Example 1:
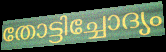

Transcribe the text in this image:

തോട്ടിച്ചോദ്യം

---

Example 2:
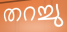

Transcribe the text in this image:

തറച്ചു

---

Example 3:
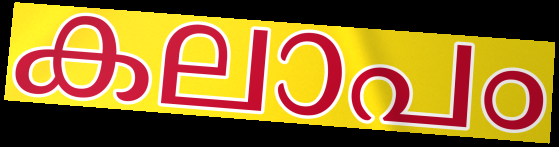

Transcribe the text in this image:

കലാപം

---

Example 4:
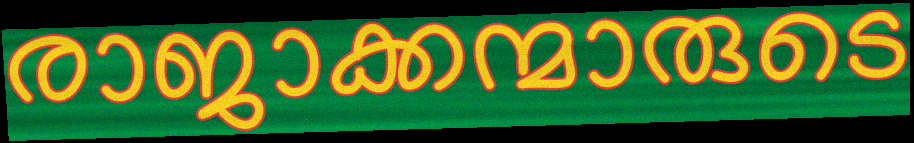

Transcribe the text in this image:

രാജാക്കന്മാരുടെ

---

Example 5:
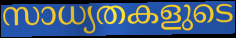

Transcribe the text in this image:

സാധ്യതകളുടെ